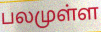
பலமுள்ள